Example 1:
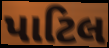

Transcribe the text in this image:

પાટિલ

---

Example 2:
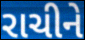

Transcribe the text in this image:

રાચીને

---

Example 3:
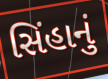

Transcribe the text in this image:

સિંહાનું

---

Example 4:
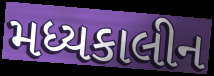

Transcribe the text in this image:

મધ્યકાલીન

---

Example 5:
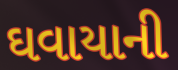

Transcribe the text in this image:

ઘવાયાની